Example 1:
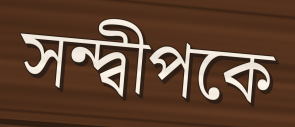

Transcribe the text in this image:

সন্দ্বীপকে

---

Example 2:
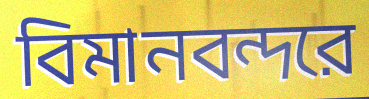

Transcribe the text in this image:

বিমানবন্দরে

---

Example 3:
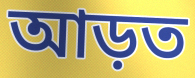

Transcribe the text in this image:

আড়ত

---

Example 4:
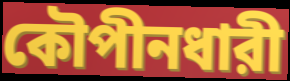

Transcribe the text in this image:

কৌপীনধারী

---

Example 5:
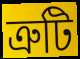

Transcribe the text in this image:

ত্রুটি